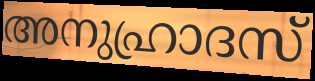
അനുഹ്രാദസ്